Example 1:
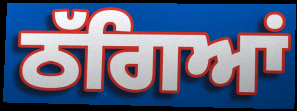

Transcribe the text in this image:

ਠੱਗਿਆਂ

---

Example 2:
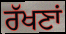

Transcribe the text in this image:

ਰੱਖਣਾਂ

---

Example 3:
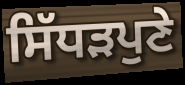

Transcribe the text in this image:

ਸਿੱਧੜਪੁਣੇ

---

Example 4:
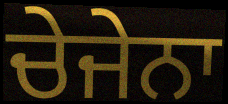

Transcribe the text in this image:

ਚੇਜੇਨਾ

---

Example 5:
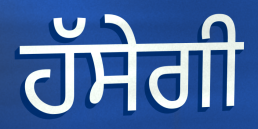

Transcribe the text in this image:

ਹੱਸੇਗੀ